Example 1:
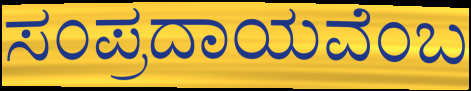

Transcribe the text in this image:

ಸಂಪ್ರದಾಯವೆಂಬ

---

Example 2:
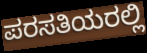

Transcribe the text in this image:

ಪರಸತಿಯರಲ್ಲಿ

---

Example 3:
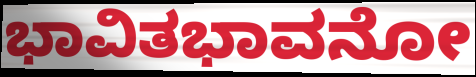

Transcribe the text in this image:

ಭಾವಿತಭಾವನೋ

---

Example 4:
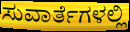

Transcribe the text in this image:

ಸುವಾರ್ತೆಗಳಲ್ಲಿ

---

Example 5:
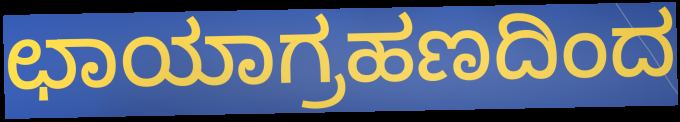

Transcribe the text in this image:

ಛಾಯಾಗ್ರಹಣದಿಂದ